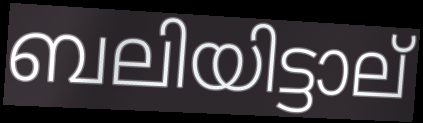
ബലിയിട്ടാല്